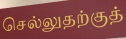
செல்லுதற்குத்